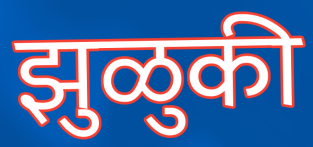
झुळुकी